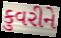
કુવરીને